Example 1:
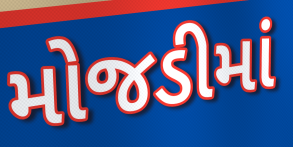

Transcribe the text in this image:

મોજડીમાં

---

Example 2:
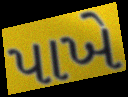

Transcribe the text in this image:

પાખે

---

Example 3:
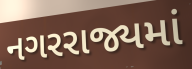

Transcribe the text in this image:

નગરરાજ્યમાં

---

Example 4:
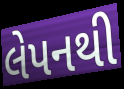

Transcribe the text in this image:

લેપનથી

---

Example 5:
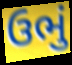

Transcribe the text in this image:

ઉભું